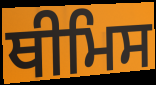
ਥੀਮਿਸ